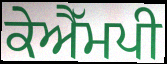
ਕੇਐੱਮਪੀ